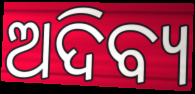
ଅଦିବ୍ୟ